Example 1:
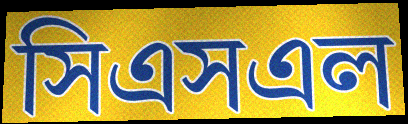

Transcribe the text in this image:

সিএসএল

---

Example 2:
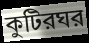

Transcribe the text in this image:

কুটিরঘর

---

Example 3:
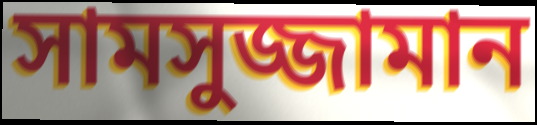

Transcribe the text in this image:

সামসুজ্জামান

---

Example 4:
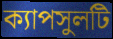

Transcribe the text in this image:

ক্যাপসুলটি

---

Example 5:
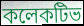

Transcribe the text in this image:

কলেকটিভ